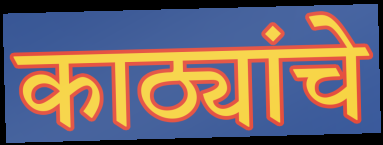
काठ्यांचे